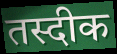
तस्दीक